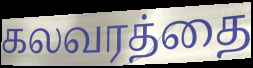
கலவரத்தை